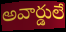
అవార్డులే